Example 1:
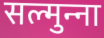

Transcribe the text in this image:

सल्मुन्ना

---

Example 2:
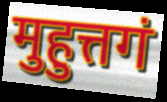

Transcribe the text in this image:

मुहुत्तगं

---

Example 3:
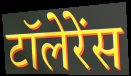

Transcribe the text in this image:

टॉलेरेंस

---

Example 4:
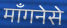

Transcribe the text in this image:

माँगनेसे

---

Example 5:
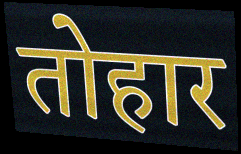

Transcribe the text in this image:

तोहार